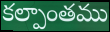
కల్పాంతము